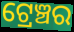
ଟ୍ରେଞ୍ଚର